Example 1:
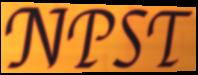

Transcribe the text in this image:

NPST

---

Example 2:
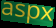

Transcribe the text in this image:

aspx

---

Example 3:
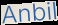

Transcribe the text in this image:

Anbil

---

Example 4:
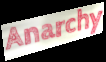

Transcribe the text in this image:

Anarchy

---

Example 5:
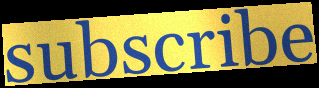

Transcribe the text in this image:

subscribe